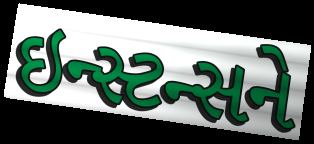
ઇન્સ્ટન્સને